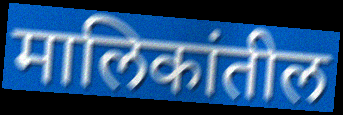
मालिकांतील